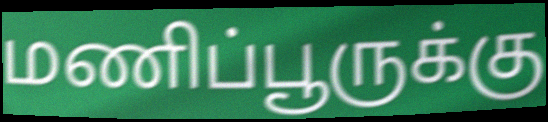
மணிப்பூருக்கு